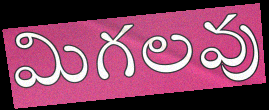
మిగలవు